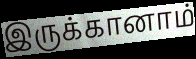
இருக்கானாம்